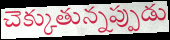
చెక్కుతున్నప్పుడు